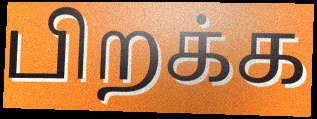
பிறக்க